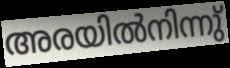
അരയിൽനിന്നു്